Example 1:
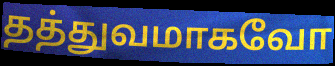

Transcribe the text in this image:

தத்துவமாகவோ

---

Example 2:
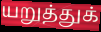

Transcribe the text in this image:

யறுத்துக்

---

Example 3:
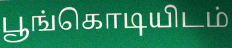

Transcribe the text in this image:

பூங்கொடியிடம்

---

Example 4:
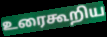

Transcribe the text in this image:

உரைகூறிய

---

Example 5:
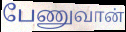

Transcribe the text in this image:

பேணுவான்